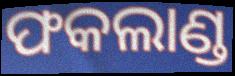
ଫକଲାଣ୍ଡ